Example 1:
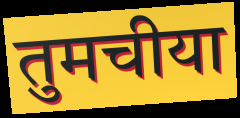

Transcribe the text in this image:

तुमचीया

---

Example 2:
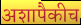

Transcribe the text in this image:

अशापैकीच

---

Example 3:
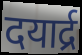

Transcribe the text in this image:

दयार्द्र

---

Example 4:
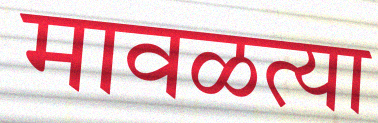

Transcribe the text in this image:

मावळत्या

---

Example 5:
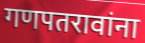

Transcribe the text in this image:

गणपतरावांना